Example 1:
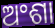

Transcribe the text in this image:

ଅଂଶା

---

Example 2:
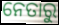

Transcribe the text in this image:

ନେତାରୁ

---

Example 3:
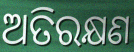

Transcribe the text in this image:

ଅତିରକ୍ଷଣ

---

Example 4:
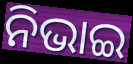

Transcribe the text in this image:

ନିଭାଇ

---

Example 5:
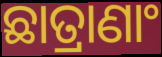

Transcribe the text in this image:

ଛାତ୍ରାଣାଂ